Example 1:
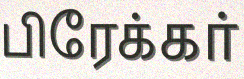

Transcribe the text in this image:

பிரேக்கர்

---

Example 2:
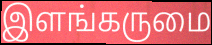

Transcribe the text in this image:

இளங்கருமை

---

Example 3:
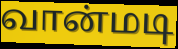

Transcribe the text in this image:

வான்மடி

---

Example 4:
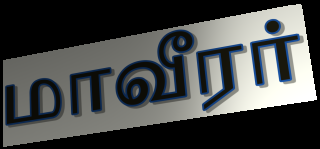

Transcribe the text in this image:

மாவீரர்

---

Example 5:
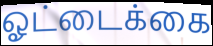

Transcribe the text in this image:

ஓட்டைக்கை